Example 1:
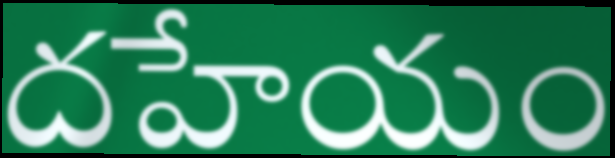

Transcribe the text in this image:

దహేయం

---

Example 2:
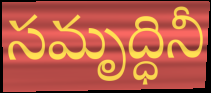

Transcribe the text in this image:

సమృద్ధినీ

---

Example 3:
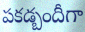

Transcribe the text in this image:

పకడ్బందీగా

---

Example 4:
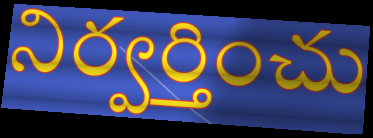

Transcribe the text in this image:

నిర్వర్తించు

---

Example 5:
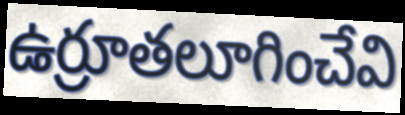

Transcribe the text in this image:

ఉర్రూతలూగించేవి